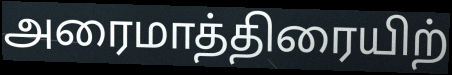
அரைமாத்திரையிற்